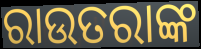
ରାଉତରାଙ୍କ